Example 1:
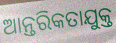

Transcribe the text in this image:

ଆନ୍ତରିକତାଯୁକ୍ତ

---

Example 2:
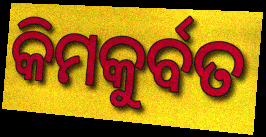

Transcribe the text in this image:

କିମକୁର୍ବତ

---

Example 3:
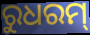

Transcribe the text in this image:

ରୁଧରମ୍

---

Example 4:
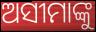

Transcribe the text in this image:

ଅସୀମାଙ୍କୁ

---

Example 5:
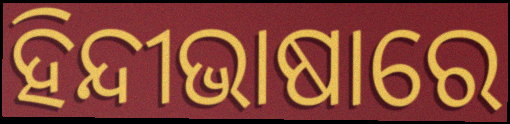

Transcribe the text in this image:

ହିନ୍ଦୀଭାଷାରେ